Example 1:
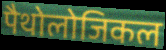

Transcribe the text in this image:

पैथोलोजिकल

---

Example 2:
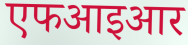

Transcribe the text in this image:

एफआइआर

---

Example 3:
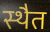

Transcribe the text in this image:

स्थैत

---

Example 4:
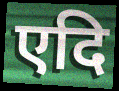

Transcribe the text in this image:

एदि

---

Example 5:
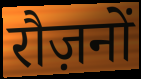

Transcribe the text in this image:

रौज़नों